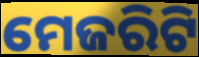
ମେଜରିଟି